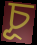
চূ